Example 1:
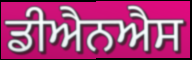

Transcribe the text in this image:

ਡੀਐਨਐਸ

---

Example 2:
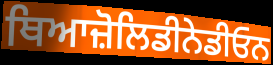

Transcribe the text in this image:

ਥਿਆਜ਼ੋਲਿਡੀਨੇਡੀਓਨ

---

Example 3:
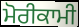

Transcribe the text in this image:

ਮੋਰੀਕਾਮੀ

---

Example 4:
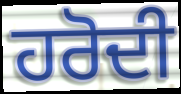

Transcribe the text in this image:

ਹਰੋਦੀ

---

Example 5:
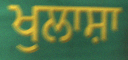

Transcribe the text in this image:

ਖੁਲਾਸ਼ਾ